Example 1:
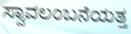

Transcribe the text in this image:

ಸ್ವಾವಲಂಬನೆಯತ್ತ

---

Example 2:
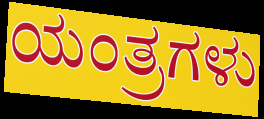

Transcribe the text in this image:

ಯಂತ್ರಗಳು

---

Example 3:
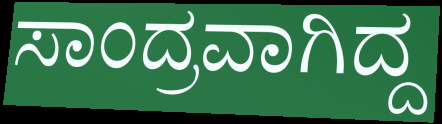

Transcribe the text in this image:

ಸಾಂದ್ರವಾಗಿದ್ದ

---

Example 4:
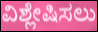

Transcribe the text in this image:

ವಿಶ್ಲೇಷಿಸಲು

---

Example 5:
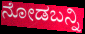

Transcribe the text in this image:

ನೋಡಬನ್ನಿ